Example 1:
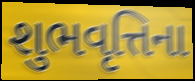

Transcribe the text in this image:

શુભવૃત્તિના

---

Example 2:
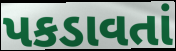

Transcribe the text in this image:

પકડાવતાં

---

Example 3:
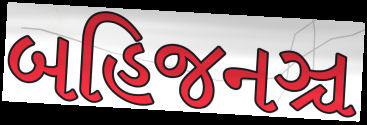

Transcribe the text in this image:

બહિજનઞ્ચ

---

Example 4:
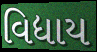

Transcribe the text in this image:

વિદ્યાય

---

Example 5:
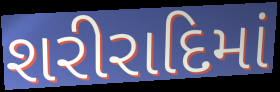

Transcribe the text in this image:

શરીરાદિમાં